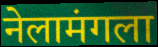
नेलामंगला